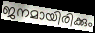
ജനമായിരിക്കും